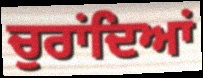
ਚੁਰਾਂਦਿਆਂ